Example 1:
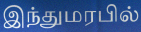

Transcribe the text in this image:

இந்துமரபில்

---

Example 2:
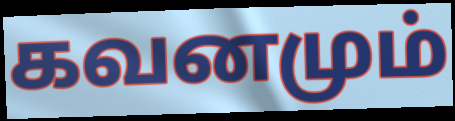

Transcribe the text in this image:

கவனமும்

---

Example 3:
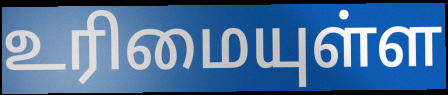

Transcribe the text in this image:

உரிமையுள்ள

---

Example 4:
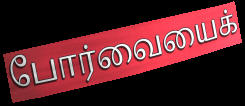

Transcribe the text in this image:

போர்வையைக்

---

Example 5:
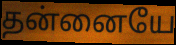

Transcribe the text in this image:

தன்னையே